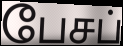
பேசப்